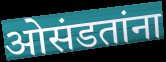
ओसंडतांना